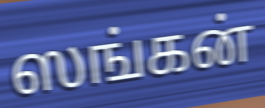
ஸங்கன்